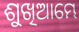
ଶୁଖିଆମ୍ଭେ